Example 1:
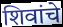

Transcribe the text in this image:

शिवांचे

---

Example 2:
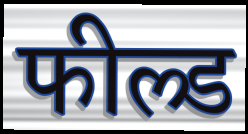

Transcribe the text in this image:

फील्ड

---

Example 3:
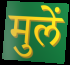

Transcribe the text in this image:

मुलें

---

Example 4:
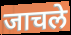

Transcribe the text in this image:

जाचले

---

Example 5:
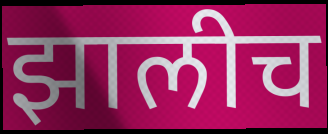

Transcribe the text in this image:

झालीच